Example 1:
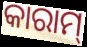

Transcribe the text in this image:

କାରାମ୍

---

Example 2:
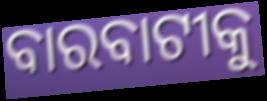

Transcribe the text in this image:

ବାରବାଟୀକୁ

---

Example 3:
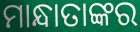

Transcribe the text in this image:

ମାନ୍ଧାତାଙ୍କର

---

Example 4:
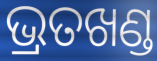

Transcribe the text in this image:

ଭ୍ରତଖଣ୍ଡ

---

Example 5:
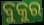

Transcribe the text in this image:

ବୁକୁର